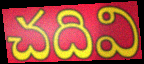
చదివి